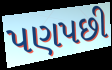
પણપછી